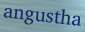
angustha